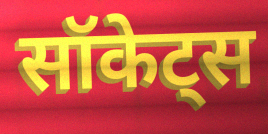
सॉकेट्स